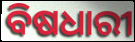
ବିଷଧାରୀ